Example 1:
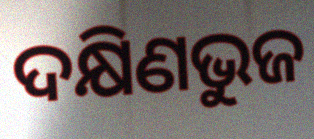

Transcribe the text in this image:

ଦକ୍ଷିଣଭୁଜ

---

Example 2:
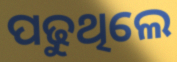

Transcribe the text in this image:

ପଢୁଥିଲେ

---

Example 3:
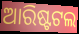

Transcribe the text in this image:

ଆରିଷ୍ଟଟଲ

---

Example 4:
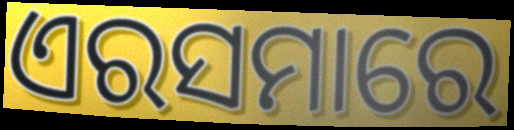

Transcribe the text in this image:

ଏରସମାରେ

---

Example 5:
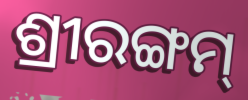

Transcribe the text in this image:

ଶ୍ରୀରଙ୍ଗମ୍